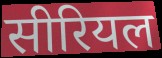
सीरियल